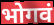
भोगवं